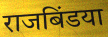
राजबिंडया